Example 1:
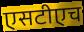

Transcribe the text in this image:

एसटीएच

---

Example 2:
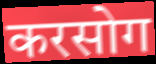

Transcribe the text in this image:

करसोग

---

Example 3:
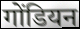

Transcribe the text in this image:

गोंडियन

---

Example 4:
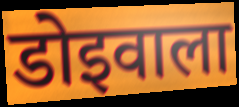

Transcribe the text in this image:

डोइवाला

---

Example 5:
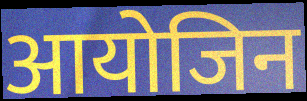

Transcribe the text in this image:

आयोजिन